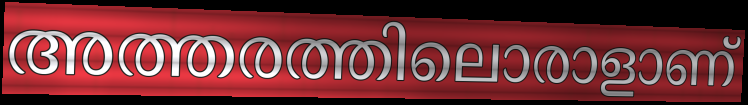
അത്തരത്തിലൊരാളാണ്